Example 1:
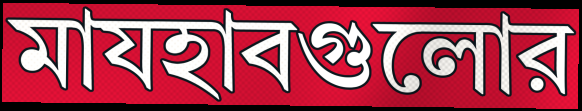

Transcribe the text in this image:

মাযহাবগুলোর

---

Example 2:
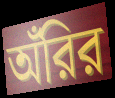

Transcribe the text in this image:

অঁরির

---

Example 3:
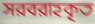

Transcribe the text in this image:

সরবরাহকৃত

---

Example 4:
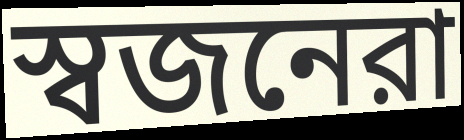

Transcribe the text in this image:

স্বজনেরা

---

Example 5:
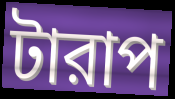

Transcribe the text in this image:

টারাপ